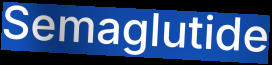
Semaglutide